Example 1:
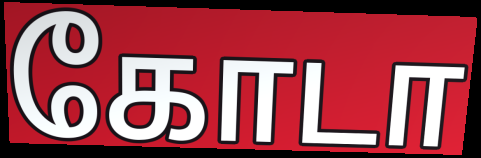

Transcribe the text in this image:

கோடா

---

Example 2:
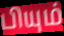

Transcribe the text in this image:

பியும்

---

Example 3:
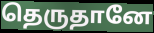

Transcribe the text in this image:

தெருதானே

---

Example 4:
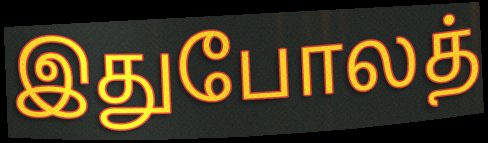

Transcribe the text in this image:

இதுபோலத்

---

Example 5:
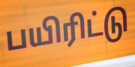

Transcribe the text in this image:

பயிரிட்டு